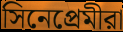
সিনেপ্রেমীরা